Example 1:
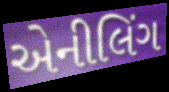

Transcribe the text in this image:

એનીલિંગ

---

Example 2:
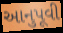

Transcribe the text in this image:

આનુપૂવી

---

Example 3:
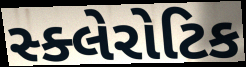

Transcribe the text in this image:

સ્ક્લેરોટિક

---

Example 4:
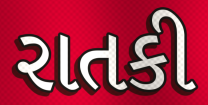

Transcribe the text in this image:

રાતકી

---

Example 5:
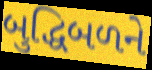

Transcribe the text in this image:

બુદ્ધિબળને